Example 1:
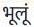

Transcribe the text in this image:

भूलूं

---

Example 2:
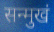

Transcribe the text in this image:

सन्मुखं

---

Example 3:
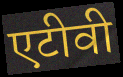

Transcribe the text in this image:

एटीवी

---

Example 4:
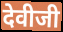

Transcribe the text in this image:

देवीजी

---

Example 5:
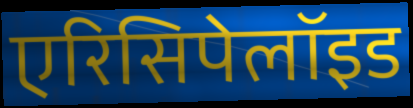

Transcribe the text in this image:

एरिसिपेलॉइड